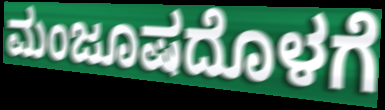
ಮಂಜೂಷದೊಳಗೆ